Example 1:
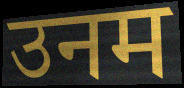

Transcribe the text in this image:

उनम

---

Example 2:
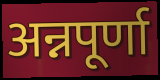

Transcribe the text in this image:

अन्नपूर्णा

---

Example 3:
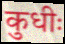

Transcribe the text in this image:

कुधीः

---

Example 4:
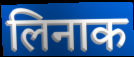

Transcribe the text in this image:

लिनाक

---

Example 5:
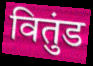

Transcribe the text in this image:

वितुंड